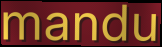
mandu